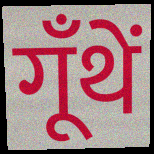
गूँथें